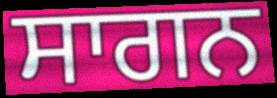
ਸਾਗਨ